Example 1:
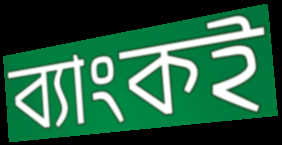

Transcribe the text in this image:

ব্যাংকই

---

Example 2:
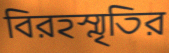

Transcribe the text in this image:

বিরহস্মৃতির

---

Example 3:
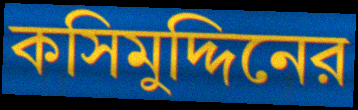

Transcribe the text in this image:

কসিমুদ্দিনের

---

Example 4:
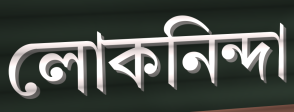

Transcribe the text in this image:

লোকনিন্দা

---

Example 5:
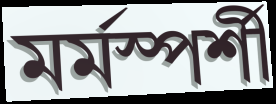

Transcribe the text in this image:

মর্মস্পর্শী